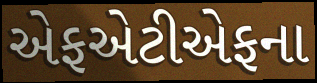
એફએટીએફના